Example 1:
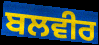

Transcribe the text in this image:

ਬਲਵੀਰ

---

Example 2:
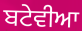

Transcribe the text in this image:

ਬਟੇਵੀਆ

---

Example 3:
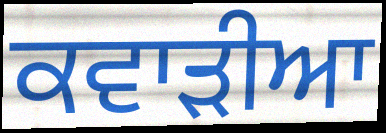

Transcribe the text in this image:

ਕਵਾੜੀਆ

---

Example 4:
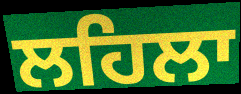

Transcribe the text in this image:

ਲਹਿਲਾ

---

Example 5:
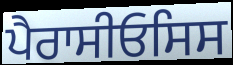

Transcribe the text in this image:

ਪੈਰਾਸੀਓਸਿਸ